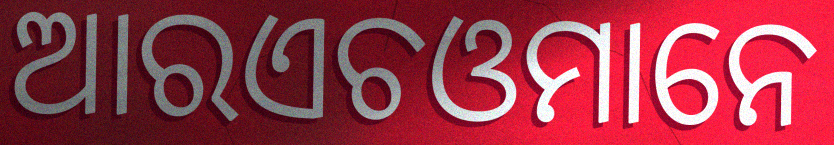
ଆରଏଚଓମାନେ